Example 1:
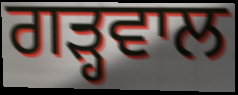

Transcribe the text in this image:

ਗੜ੍ਹਵਾਲ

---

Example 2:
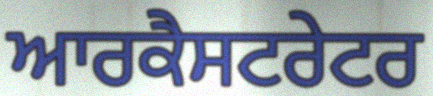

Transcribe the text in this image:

ਆਰਕੈਸਟਰੇਟਰ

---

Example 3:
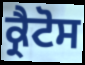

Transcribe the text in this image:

ਕ੍ਰੈਟੋਸ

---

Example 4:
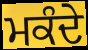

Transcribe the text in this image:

ਮਕੰਦੇ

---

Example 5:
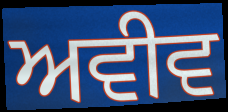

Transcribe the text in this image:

ਅਵੀਵ